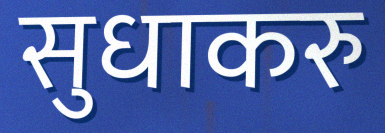
सुधाकरु